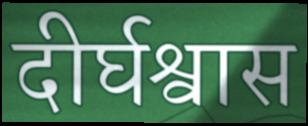
दीर्घश्वास